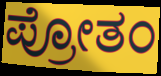
ಪ್ರೋತಂ